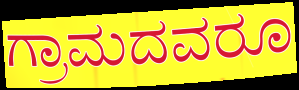
ಗ್ರಾಮದವರೂ